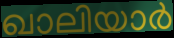
ഖാലിയാർ